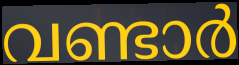
വണ്ടാർ